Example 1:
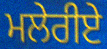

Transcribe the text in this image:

ਮਲੇਰੀਏ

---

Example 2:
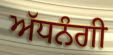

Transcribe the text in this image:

ਅੱਧਨੰਗੀ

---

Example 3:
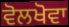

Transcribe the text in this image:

ਵੋਲਖੋਵਾ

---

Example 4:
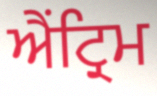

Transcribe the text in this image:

ਐਂਟ੍ਰਿਮ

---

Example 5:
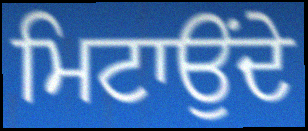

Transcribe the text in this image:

ਮਿਟਾਉਂਦੇ